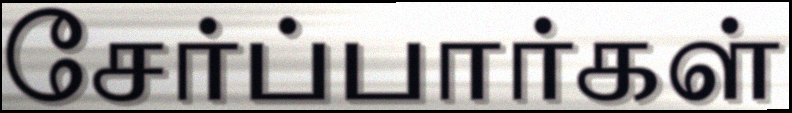
சேர்ப்பார்கள்